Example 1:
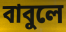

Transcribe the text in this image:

বাবুলে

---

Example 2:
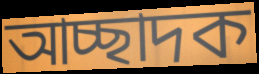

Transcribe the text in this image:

আচ্ছাদক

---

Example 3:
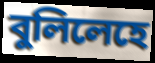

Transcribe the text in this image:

বুলিলেহে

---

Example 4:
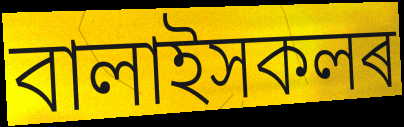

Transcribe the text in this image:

বালাইসকলৰ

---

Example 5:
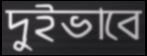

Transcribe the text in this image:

দুইভাবে